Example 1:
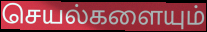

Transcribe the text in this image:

செயல்களையும்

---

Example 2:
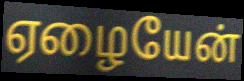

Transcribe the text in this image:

ஏழையேன்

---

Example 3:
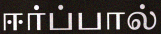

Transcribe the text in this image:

ஈர்ப்பால்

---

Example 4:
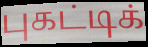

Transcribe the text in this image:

புகட்டிக்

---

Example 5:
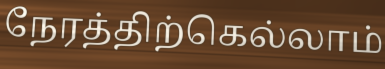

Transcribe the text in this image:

நேரத்திற்கெல்லாம்